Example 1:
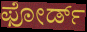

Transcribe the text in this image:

ಫೋರ್ಡ್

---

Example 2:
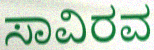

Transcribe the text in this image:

ಸಾವಿರವ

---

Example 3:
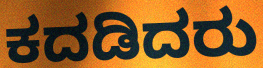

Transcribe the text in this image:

ಕದಡಿದರು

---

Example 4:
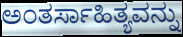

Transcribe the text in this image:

ಅಂತರ್ಸಾಹಿತ್ಯವನ್ನು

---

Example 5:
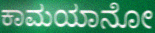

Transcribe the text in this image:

ಕಾಮಯಾನೋ